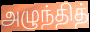
அழுந்தித்